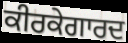
ਕੀਰਕੇਗਾਰਦ